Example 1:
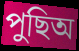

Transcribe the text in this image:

পুছিঅ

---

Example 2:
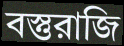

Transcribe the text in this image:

বস্তুরাজি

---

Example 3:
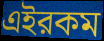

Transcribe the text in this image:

এইরকম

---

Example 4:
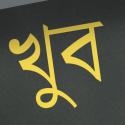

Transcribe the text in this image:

খুব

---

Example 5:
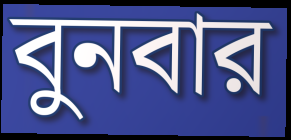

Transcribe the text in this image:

বুনবার